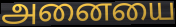
அனையை